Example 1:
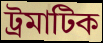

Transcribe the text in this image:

ট্রমাটিক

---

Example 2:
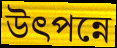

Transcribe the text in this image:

উৎপন্নে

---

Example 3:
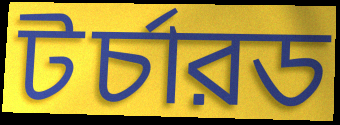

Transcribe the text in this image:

টর্চারড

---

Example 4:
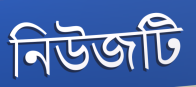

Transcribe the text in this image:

নিউজটি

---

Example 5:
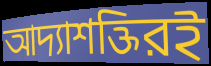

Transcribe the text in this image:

আদ্যাশক্তিরই